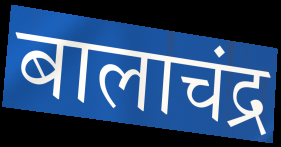
बालाचंद्र